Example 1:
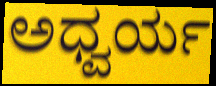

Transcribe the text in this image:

ಅಧ್ವರ್ಯ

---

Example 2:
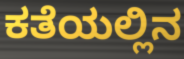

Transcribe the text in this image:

ಕತೆಯಲ್ಲಿನ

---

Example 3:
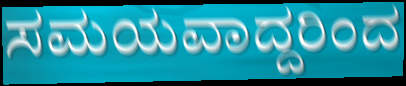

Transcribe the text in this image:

ಸಮಯವಾದ್ದರಿಂದ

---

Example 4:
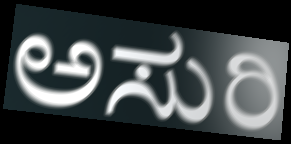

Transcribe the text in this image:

ಅಸುರಿ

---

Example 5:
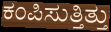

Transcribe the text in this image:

ಕಂಪಿಸುತ್ತಿತ್ತು